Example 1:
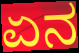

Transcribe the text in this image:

ಏನ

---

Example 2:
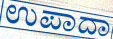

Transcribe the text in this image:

ಉಪಾದಾ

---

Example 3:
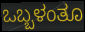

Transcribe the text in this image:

ಒಬ್ಬಳಂತೂ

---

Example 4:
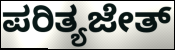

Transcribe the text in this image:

ಪರಿತ್ಯಜೇತ್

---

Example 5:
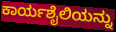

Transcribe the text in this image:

ಕಾರ್ಯಶೈಲಿಯನ್ನು